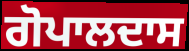
ਗੋਪਾਲਦਾਸ